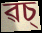
ৱচ্